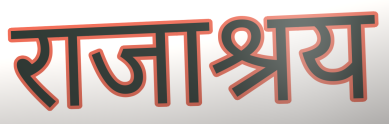
राजाश्रय